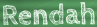
Rendah